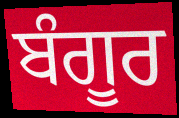
ਬੰਗੂਰ